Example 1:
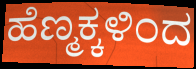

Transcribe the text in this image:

ಹೆಣ್ಮಕ್ಕಳಿಂದ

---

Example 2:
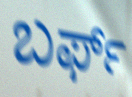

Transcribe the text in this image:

ಬರ್ಫ್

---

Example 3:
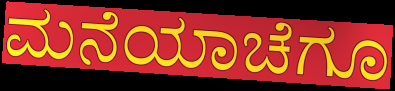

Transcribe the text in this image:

ಮನೆಯಾಚೆಗೂ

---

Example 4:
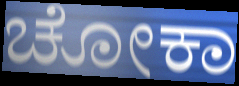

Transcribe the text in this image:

ಚೋಕಾ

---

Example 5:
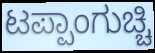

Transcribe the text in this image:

ಟಪ್ಪಾಂಗುಚ್ಚಿ